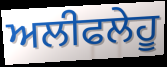
ਅਲੀਫਲੇਹੂ